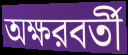
অক্ষরবর্তী